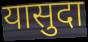
यासुदा